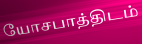
யோசபாத்திடம்